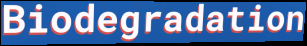
Biodegradation